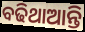
ବଢିଥାଆନ୍ତି